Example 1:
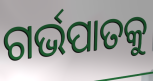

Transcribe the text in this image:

ଗର୍ଭପାତକୁ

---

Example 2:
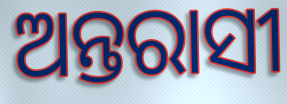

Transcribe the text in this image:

ଅନ୍ତରାସୀ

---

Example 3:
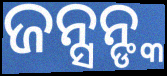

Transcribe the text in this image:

ଜନ୍ସନ୍ଙ୍କ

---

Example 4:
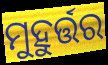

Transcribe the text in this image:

ମୁହୁର୍ତ୍ତର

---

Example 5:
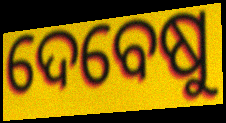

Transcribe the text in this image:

ଦେବେଷୁ